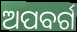
ଅପବର୍ଗ